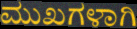
ಮುಖಗಳಾಗಿ